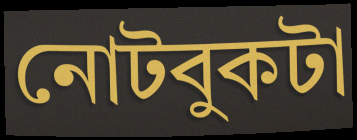
নোটবুকটা